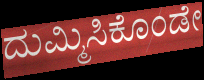
ದುಮ್ಮಿಸಿಕೊಂಡೇ